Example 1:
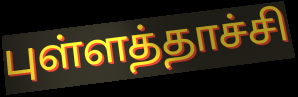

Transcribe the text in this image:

புள்ளத்தாச்சி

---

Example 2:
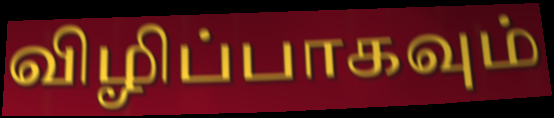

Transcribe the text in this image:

விழிப்பாகவும்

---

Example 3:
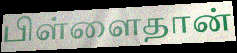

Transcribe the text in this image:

பிள்ளைதான்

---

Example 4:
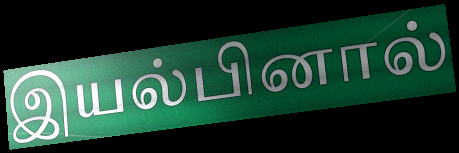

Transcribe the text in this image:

இயல்பினால்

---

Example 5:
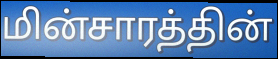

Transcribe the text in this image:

மின்சாரத்தின்